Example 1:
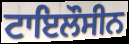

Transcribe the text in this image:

ਟਾਇਲੌਸੀਨ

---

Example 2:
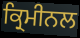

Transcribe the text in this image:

ਕ੍ਰਿਮੀਨਲ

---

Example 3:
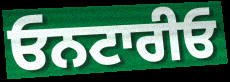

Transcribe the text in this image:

ਓਨਟਾਰੀਓ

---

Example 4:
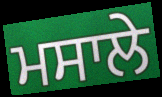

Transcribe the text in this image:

ਮਸਾਲੇ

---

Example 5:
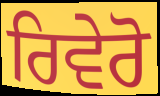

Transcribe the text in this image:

ਰਿਵੇਰੋ